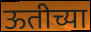
ऊतीच्या